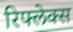
रिफ्लेक्स